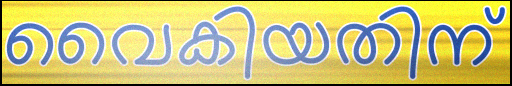
വൈകിയതിന്